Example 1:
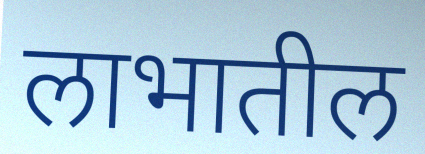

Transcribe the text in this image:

लाभातील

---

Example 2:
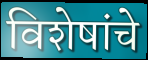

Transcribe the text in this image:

विशेषांचे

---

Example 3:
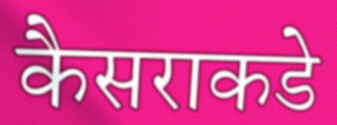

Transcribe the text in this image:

कैसराकडे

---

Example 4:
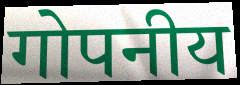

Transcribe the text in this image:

गोपनीय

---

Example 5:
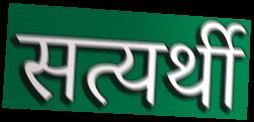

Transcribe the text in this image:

सत्यर्थी